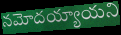
నమోదయ్యాయని